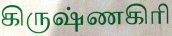
கிருஷ்ணகிரி